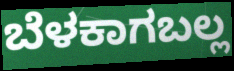
ಬೆಳಕಾಗಬಲ್ಲ